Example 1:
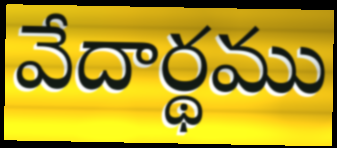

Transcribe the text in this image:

వేదార్థము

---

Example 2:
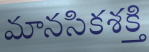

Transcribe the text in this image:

మానసికశక్తి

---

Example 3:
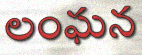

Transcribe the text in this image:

లంఘన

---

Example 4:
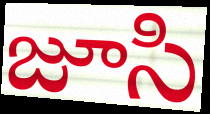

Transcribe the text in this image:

జూసి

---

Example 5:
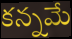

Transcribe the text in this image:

కన్నమే